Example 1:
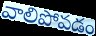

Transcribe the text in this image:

వాలిపోవడం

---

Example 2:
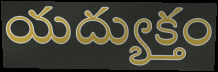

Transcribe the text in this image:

యద్యుక్తం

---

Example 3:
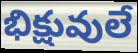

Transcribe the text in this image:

భిక్షువులే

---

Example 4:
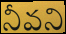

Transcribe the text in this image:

నీవని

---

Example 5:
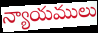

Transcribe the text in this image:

న్యాయములు